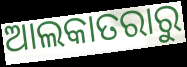
ଆଲକାତରାରୁ